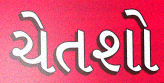
ચેતશો